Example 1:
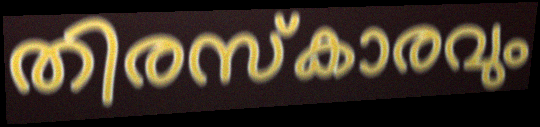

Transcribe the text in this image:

തിരസ്കാരവും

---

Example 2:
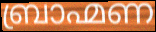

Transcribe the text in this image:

ബ്രാഹ്മണ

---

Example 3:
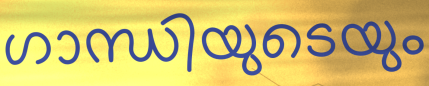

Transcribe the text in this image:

ഗാന്ധിയുടെയും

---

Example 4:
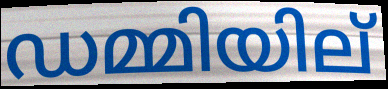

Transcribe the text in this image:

ഡമ്മിയില്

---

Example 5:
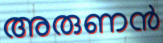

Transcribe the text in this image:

അരുണൻ